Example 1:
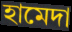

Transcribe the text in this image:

হামেদা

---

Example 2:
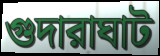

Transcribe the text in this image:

গুদারাঘাট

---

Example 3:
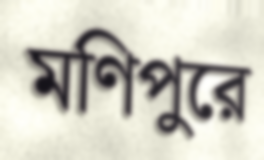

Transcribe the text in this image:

মণিপুরে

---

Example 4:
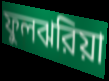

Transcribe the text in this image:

ফুলঝরিয়া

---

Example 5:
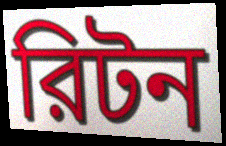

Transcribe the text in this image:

রিটন